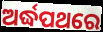
ଅର୍ଦ୍ଧପଥରେ